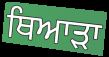
ਥਿਆੜਾ